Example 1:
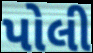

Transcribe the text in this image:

પોલી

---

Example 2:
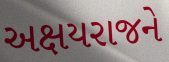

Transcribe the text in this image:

અક્ષયરાજને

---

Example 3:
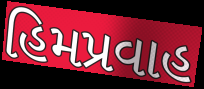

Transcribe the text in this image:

હિમપ્રવાહ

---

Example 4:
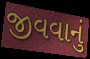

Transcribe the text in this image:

જીવવાનું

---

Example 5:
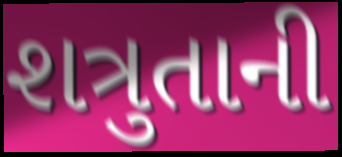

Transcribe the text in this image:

શત્રુતાની